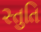
સ્તુતિ